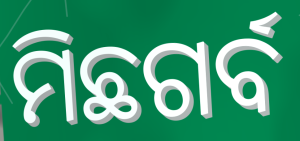
ମିଛଗର୍ବ